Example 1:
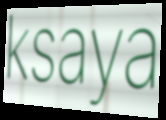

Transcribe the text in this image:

ksaya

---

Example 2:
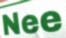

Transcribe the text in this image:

Nee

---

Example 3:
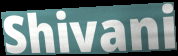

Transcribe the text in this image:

Shivani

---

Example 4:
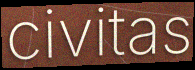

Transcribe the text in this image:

civitas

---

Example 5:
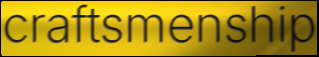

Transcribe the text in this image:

craftsmenship